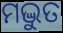
ମଦ୍ଭୁତ